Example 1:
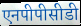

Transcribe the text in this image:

एनपीपीसीडी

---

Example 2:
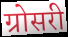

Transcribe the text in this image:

ग्रोसरी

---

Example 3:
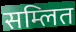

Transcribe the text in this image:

सम्लित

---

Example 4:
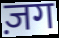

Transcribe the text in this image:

ज़ग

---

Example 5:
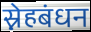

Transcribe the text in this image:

स्नेहबंधन